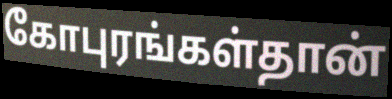
கோபுரங்கள்தான்